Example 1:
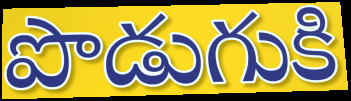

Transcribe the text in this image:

పొడుగుకి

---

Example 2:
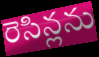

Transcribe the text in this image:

రెసిన్లను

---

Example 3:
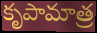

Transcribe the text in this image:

కృపామాత్ర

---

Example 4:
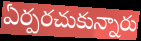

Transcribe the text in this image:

ఏర్పరచుకున్నారు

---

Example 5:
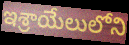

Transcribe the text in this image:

ఇశ్రాయేలులోని